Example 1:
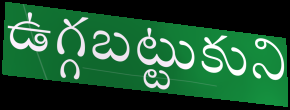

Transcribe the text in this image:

ఉగ్గబట్టుకుని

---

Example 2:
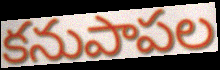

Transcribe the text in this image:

కనుపాపల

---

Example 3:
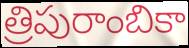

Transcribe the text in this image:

త్రిపురాంబికా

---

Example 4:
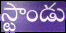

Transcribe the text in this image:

స్టాండు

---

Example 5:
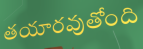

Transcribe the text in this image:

తయారవుతోంది